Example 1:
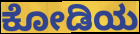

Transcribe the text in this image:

ಕೋಡಿಯ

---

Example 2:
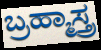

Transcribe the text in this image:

ಬ್ರಹ್ಮಾಸ್ತ್ರ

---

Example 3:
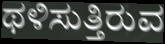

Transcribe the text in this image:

ಥಳಿಸುತ್ತಿರುವ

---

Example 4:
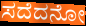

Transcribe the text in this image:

ಸದೆದನೋ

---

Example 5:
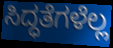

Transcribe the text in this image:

ಸಿದ್ಧತೆಗಳೆಲ್ಲ